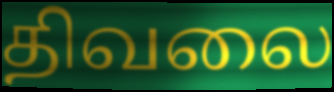
திவலை